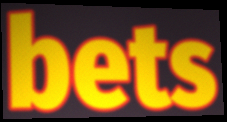
bets